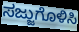
ಸಜ್ಜುಗೊಳಿಸಿ